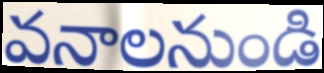
వనాలనుండి